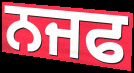
ਨਜਫ